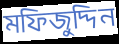
মফিজুদ্দিন